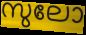
സുലോ